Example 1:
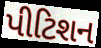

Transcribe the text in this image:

પીટિશન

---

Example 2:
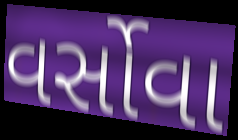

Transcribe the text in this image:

વર્સોવા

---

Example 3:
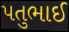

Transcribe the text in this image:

પતુભાઈ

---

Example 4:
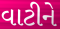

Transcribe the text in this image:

વાટીને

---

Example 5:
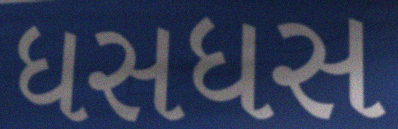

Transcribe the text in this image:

ધસધસ